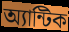
অ্যান্টিক